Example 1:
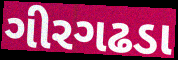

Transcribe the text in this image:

ગીરગઢડા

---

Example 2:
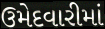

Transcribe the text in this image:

ઉમેદવારીમાં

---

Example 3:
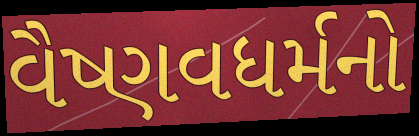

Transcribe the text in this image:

વૈષ્ણવધર્મનો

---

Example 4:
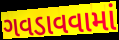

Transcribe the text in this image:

ગવડાવવામાં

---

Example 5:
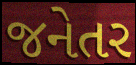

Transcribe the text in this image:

જનેતર